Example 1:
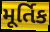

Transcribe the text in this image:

મૂર્તિક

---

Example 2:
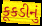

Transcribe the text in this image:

કૂકડીનું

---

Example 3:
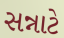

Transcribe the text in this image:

સન્નાટે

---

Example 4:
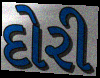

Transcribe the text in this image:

દોરી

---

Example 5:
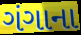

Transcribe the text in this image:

ગંગાના